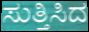
ಸುತ್ತಿಸಿದ